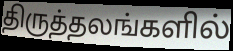
திருத்தலங்களில்